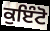
ਕੁਇੰਟੋ